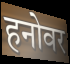
हनोवर